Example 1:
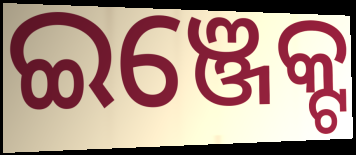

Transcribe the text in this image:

ଇଞ୍ଜେକ୍ଟ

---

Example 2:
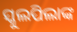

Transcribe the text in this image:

ସ୍କୁଲପିଲାଙ୍କ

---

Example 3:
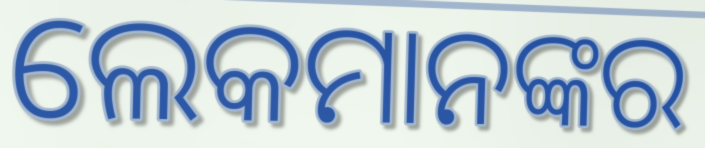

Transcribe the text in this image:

ଲେକମାନଙ୍କର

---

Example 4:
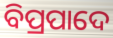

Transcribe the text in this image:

ବିପ୍ରପାଦେ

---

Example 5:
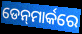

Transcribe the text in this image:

ଡେନ୍‍ମାର୍କରେ